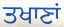
ਤਖਾਣਾਂ